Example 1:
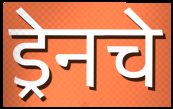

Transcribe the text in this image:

ड्रेनचे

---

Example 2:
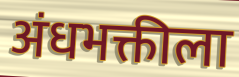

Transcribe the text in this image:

अंधभक्तीला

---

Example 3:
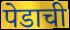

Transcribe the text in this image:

पेडाची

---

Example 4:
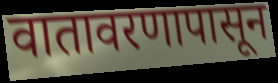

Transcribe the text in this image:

वातावरणापासून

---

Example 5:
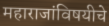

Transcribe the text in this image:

महाराजांविषयीचे